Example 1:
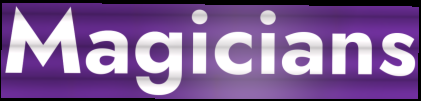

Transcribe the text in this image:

Magicians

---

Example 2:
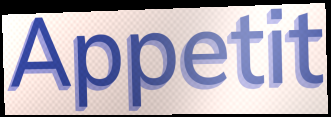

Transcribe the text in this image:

Appetit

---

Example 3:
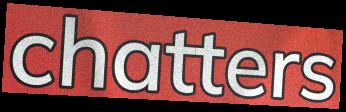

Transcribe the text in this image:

chatters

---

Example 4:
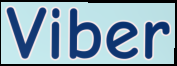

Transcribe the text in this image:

Viber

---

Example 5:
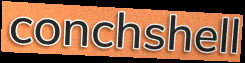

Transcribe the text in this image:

conchshell